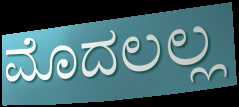
ಮೊದಲಲ್ಲ